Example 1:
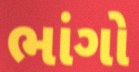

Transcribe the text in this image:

ભાંગો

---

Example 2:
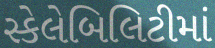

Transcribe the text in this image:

સ્કેલેબિલિટીમાં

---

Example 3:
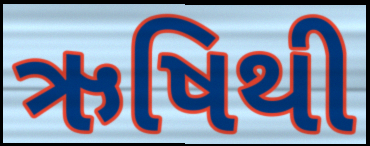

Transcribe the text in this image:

ઋષિથી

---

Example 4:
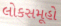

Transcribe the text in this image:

લોકસમૂહો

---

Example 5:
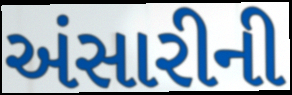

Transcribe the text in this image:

અંસારીની